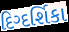
દિગ્દર્શિકા